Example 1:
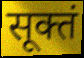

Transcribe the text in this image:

सूक्तं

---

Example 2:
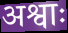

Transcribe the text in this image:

अश्वाः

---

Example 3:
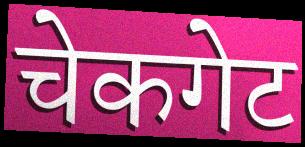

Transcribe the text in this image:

चेकगेट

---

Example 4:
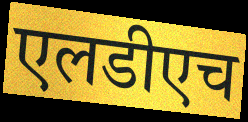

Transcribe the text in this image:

एलडीएच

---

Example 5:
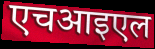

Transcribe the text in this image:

एचआइएल